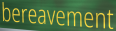
bereavement